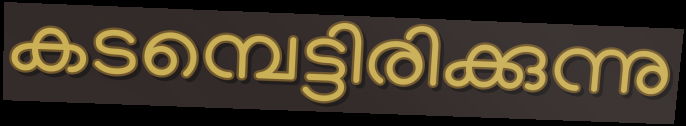
കടമ്പെട്ടിരിക്കുന്നു